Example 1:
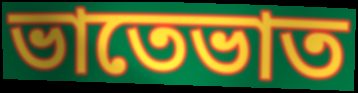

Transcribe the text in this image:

ভাতেভাত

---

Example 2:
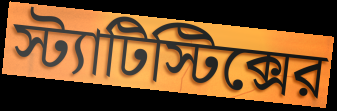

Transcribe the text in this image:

স্ট্যাটিস্টিক্সের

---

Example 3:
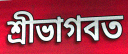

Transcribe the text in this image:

শ্রীভাগবত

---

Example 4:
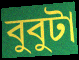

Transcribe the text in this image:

বুবুটা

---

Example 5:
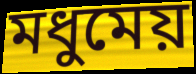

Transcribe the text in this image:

মধুমেয়